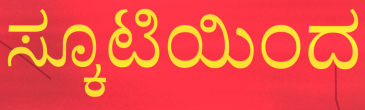
ಸ್ಕೂಟಿಯಿಂದ